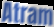
Atram